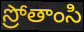
స్రోతాంసి